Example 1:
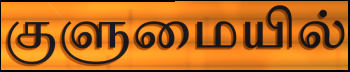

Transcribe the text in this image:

குளுமையில்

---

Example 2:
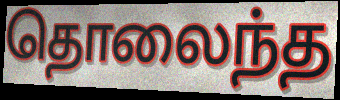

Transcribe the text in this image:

தொலைந்த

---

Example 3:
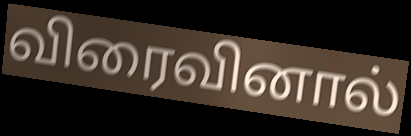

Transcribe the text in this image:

விரைவினால்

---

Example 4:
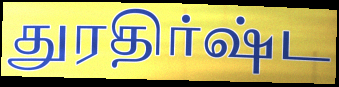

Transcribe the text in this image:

துரதிர்ஷ்ட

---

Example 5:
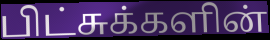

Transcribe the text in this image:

பிட்சுக்களின்